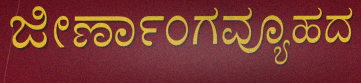
ಜೀರ್ಣಾಂಗವ್ಯೂಹದ